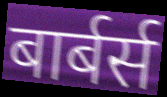
बार्बर्स